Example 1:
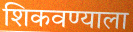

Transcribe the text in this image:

शिकवण्याला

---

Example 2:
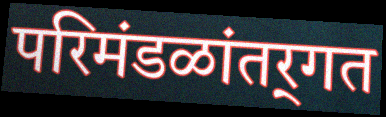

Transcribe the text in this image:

परिमंडळांतर्गत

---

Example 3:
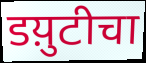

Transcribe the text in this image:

डय़ुटीचा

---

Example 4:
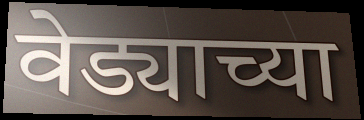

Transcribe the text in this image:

वेड्याच्या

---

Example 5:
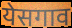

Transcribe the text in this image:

येसगाव